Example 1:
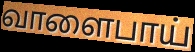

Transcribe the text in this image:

வாளைபாய்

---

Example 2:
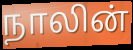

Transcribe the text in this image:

நாலின்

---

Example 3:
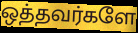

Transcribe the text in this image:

ஒத்தவர்களே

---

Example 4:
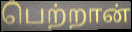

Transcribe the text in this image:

பெற்றான்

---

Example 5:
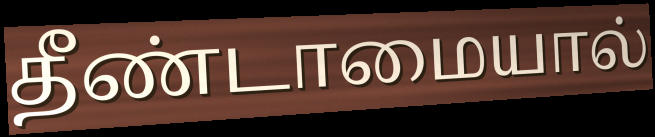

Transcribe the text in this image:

தீண்டாமையால்